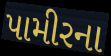
પામીરના